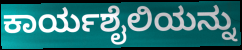
ಕಾರ್ಯಶೈಲಿಯನ್ನು